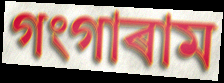
গংগাৰাম